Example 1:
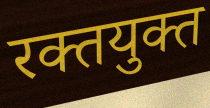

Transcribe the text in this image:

रक्तयुक्त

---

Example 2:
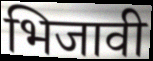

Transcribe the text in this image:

भिजावी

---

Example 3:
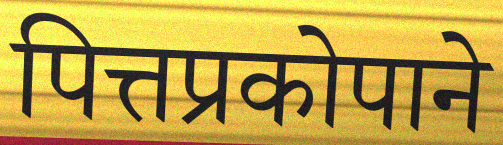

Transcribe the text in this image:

पित्तप्रकोपाने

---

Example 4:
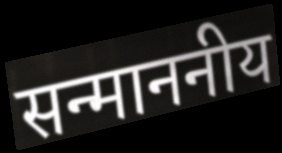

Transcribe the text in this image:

सन्माननीय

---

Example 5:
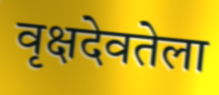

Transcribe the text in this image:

वृक्षदेवतेला